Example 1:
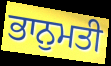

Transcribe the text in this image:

ਭਾਨੁਮਤੀ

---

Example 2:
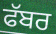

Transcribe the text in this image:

ਫੱਬਰ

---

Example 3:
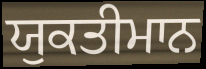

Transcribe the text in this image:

ਯੁਕਤੀਮਾਨ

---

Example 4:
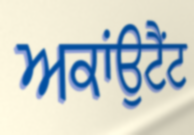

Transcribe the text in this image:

ਅਕਾਂਉਟੈਂਟ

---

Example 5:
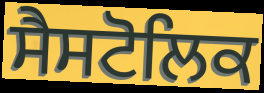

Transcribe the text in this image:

ਸੈਸਟੋਲਿਕ